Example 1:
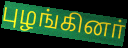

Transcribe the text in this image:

புழங்கினர்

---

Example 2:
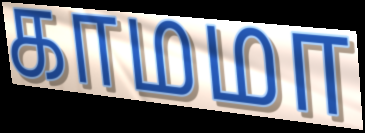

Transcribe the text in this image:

காமமா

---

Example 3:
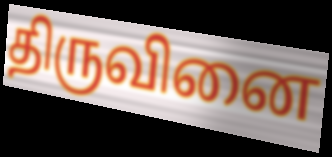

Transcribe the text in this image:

திருவினை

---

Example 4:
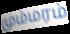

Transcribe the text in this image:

மும்மரம்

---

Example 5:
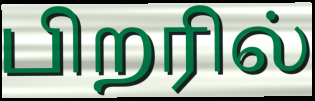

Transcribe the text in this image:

பிறரில்